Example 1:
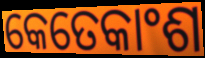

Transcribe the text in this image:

କେତେକାଂଶ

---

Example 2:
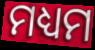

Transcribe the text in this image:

ମଧ୍ୟମ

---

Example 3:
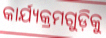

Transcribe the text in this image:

କାର୍ଯ୍ୟକ୍ରମଗୁଡ଼ିକୁ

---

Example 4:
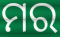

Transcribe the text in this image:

ମର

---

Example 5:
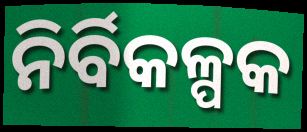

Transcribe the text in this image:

ନିର୍ବିକଳ୍ପକ